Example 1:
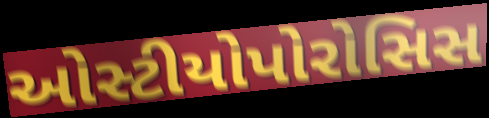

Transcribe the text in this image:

ઓસ્ટીયોપોરોસિસ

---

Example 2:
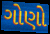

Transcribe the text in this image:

ગોણો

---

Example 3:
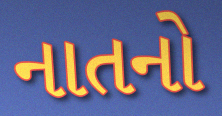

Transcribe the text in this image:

નાતનો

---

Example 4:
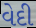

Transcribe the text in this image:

વેદી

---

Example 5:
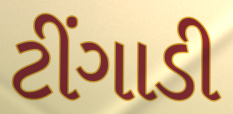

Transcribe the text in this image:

ટીંગાડી